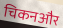
चिकनऔर